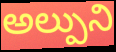
అల్పుని